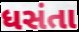
ધસંતા